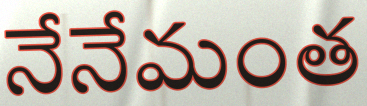
నేనేమంత